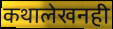
कथालेखनही